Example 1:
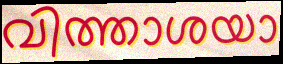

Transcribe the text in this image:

വിത്താശയാ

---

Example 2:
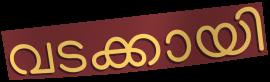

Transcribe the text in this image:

വടക്കായി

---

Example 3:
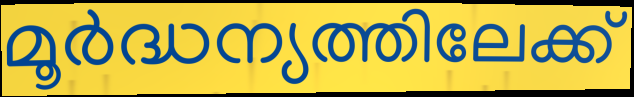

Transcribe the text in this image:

മൂർദ്ധന്യത്തിലേക്ക്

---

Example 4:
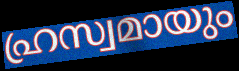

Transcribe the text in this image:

ഹ്രസ്വമായും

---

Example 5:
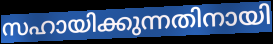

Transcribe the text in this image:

സഹായിക്കുന്നതിനായി